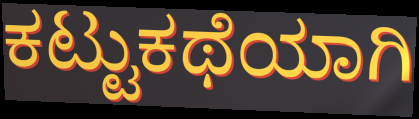
ಕಟ್ಟುಕಥೆಯಾಗಿ